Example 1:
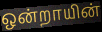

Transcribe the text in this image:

ஒன்றாயின்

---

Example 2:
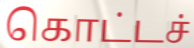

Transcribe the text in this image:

கொட்டச்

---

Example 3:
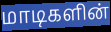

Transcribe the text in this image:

மாடிகளின்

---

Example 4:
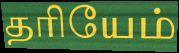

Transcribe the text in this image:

தரியேம்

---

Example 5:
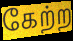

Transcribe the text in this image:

கேற்ற